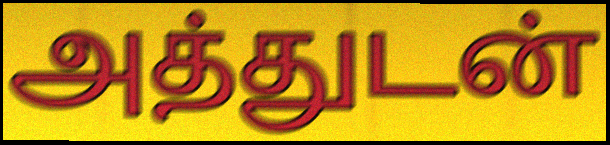
அத்துடன்